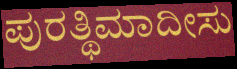
ಪುರತ್ಥಿಮಾದೀಸು